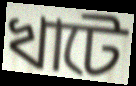
খাটে